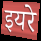
इयरे